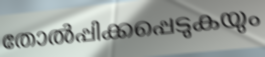
തോൽപ്പിക്കപ്പെടുകയും